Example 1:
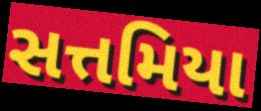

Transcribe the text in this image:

સત્તમિયા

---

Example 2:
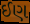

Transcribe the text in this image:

ઈણ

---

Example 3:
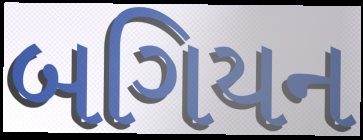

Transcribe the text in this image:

બગિયન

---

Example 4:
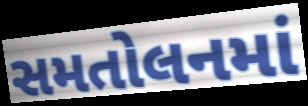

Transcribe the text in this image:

સમતોલનમાં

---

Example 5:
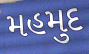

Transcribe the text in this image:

મહમુદ